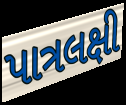
પાત્રલક્ષી